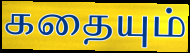
கதையும்